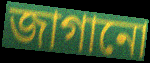
জাগানো